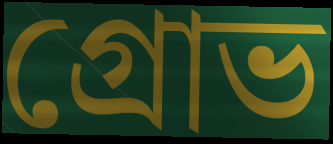
গ্রোভ